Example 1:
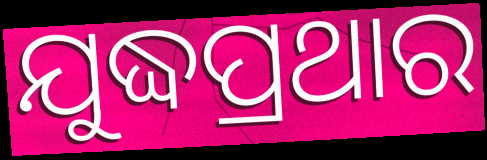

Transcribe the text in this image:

ଯୁଦ୍ଧପ୍ରଥାର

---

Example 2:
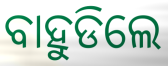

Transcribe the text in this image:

ବାହୁଡିଲେ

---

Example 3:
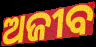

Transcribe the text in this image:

ଅଜୀବ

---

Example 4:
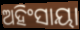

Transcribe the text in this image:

ଅହିଂସାୟା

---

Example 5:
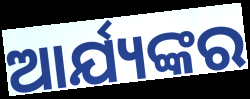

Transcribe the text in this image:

ଆର୍ଯ୍ୟଙ୍କର